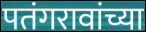
पतंगरावांच्या